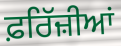
ਫ਼ਰਿੱਜ਼ੀਆਂ